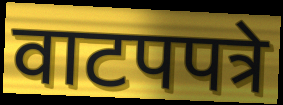
वाटपपत्रे